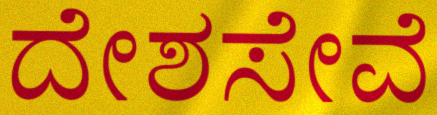
ದೇಶಸೇವೆ